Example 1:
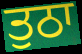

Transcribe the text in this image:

ਤੁਠਾ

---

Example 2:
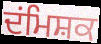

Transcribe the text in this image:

ਦਂਮਿਸ਼ਕ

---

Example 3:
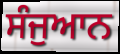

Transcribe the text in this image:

ਸੰਜੁਆਨ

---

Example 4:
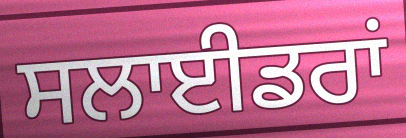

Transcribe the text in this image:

ਸਲਾਈਡਰਾਂ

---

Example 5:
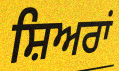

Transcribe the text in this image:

ਸ਼ਿਅਰਾਂ